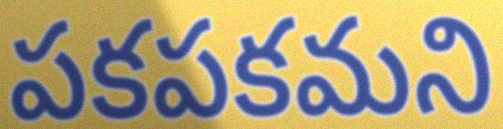
పకపకమని